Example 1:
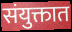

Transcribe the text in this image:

संयुक्तात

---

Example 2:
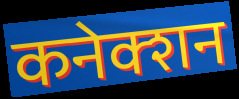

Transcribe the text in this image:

कनेक्शन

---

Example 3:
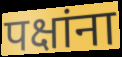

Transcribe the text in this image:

पक्षांना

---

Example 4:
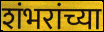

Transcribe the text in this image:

शंभरांच्या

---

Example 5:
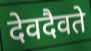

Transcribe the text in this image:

देवदैवते